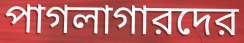
পাগলাগারদের